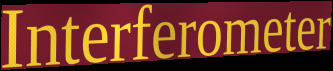
Interferometer